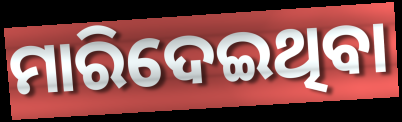
ମାରିଦେଇଥିବା